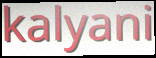
kalyani